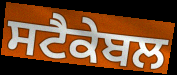
ਸਟੈਕੇਬਲ